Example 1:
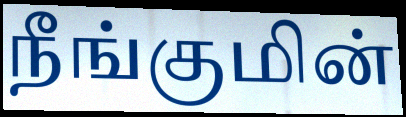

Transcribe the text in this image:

நீங்குமின்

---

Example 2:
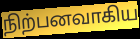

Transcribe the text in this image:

நிற்பனவாகிய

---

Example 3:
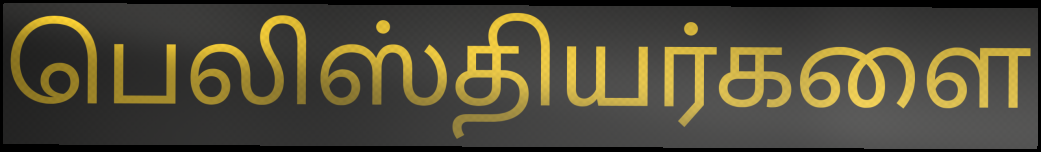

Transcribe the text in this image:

பெலிஸ்தியர்களை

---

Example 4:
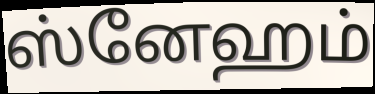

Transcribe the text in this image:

ஸ்னேஹம்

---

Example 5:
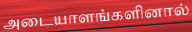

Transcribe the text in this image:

அடையாளங்களினால்